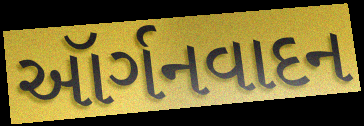
ઑર્ગનવાદન